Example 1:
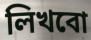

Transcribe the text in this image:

লিখবো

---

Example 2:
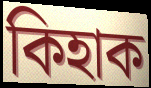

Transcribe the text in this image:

কিহাক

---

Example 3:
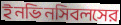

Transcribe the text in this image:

ইনভিনসিবলসের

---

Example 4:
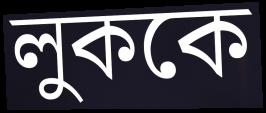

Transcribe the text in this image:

লুককে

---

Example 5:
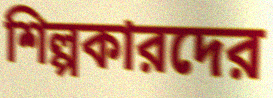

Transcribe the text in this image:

শিল্পকারদের